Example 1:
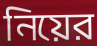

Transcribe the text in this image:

নিয়ের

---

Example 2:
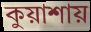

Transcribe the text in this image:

কুয়াশায়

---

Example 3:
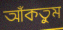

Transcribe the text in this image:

আঁকতুম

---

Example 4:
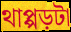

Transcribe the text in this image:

থাপ্পড়টা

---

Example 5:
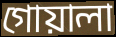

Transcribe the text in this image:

গোয়ালা